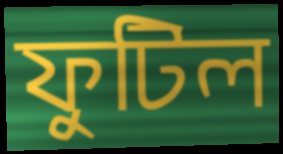
ফুটিল